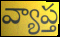
వ్యాప్త